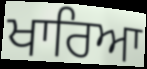
ਖਾਰਿਆ